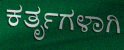
ಕರ್ತೃಗಳಾಗಿ